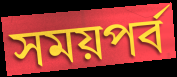
সময়পর্ব